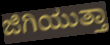
ಜಿಗಿಯುತ್ತಾ